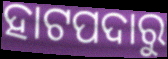
ହାଟପଦାରୁ